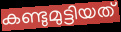
കണ്ടുമുട്ടിയത്